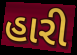
હારી